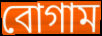
বোগাম